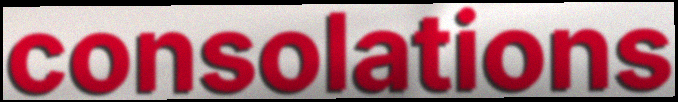
consolations